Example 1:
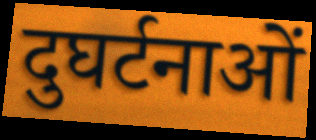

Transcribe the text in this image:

दुघर्टनाओं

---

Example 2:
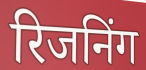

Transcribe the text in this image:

रिजनिंग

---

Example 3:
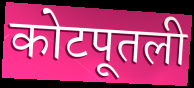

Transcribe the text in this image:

कोटपूतली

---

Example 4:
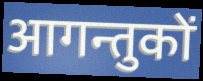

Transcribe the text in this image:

आगन्तुकों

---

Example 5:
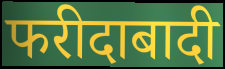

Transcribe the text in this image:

फरीदाबादी